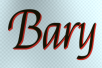
Bary